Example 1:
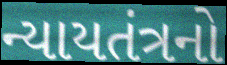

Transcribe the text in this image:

ન્યાયતંત્રનો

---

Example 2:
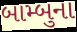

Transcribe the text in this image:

બામ્બુના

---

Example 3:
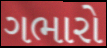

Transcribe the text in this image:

ગભારો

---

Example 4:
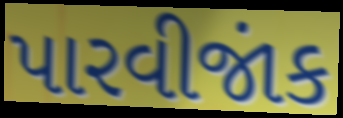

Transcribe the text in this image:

પારવીજાંક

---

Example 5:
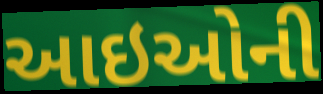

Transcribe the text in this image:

આઇઓની